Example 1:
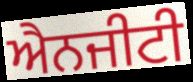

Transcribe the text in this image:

ਐਨਜੀਟੀ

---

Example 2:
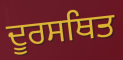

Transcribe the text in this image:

ਦੂਰਸਥਿਤ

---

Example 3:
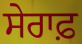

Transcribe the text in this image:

ਸੇਰਾਫ਼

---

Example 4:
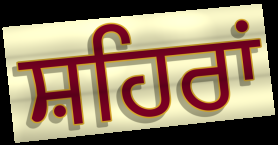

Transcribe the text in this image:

ਸ਼ਹਿਰਾਂ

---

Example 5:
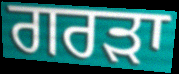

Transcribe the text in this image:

ਗਰੜਾ